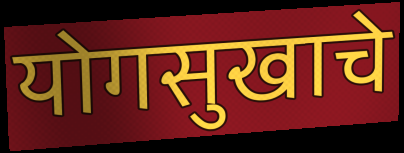
योगसुखाचे